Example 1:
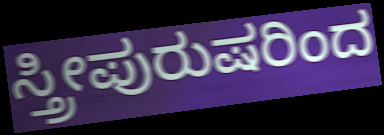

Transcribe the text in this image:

ಸ್ತ್ರೀಪುರುಷರಿಂದ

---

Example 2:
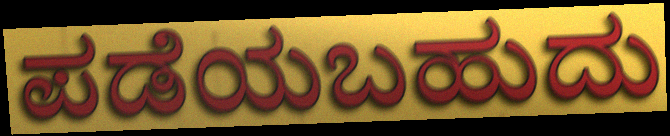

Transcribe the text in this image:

ಪಡೆಯಬಹುದು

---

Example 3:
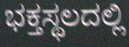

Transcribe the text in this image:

ಭಕ್ತಸ್ಥಲದಲ್ಲಿ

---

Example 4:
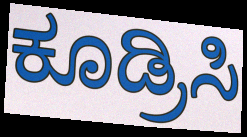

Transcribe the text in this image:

ಕೂಡ್ರಿಸಿ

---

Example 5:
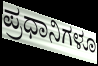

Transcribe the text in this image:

ಪ್ರಧಾನಿಗಳೂ